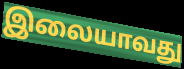
இலையாவது